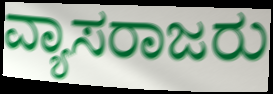
ವ್ಯಾಸರಾಜರು